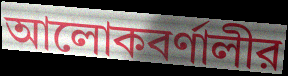
আলোকবর্ণালীর